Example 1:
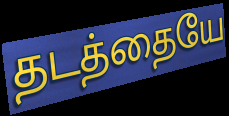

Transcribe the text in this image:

தடத்தையே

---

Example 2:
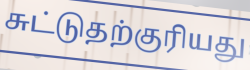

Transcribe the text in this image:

சுட்டுதற்குரியது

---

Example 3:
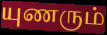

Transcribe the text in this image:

யுணரும்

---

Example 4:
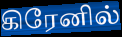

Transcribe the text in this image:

கிரேனில்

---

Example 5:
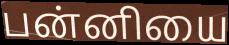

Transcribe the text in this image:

பன்னியை